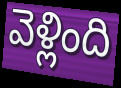
వెళ్లింది